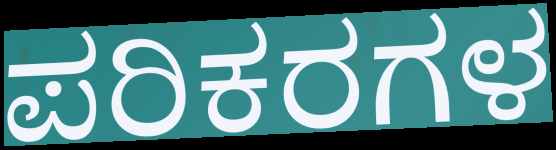
ಪರಿಕರಗಳ